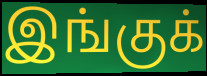
இங்குக்